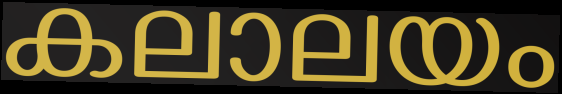
കലാലയം